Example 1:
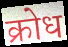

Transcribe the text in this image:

क्रोध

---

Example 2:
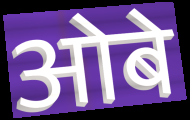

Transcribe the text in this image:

ओबे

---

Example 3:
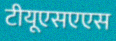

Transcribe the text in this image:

टीयूएसएएस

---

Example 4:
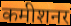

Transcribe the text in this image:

कमीशनर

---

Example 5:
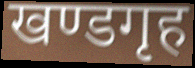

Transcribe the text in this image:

खण्डगृह